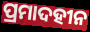
ପ୍ରମାଦହୀନ